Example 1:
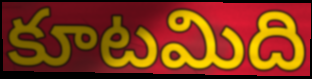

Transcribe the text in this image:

కూటమిది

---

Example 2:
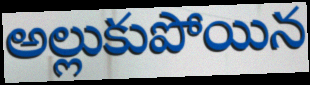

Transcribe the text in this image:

అల్లుకుపోయిన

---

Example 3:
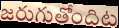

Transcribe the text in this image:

జరుగుతోందిట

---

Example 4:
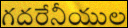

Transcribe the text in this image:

గదరేనీయుల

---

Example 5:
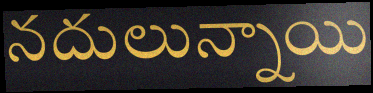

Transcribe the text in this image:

నదులున్నాయి